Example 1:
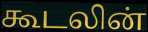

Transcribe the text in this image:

கூடலின்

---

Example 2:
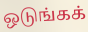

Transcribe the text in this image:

ஒடுங்கக்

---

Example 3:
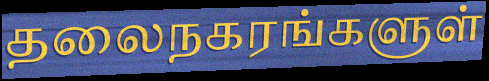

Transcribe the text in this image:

தலைநகரங்களுள்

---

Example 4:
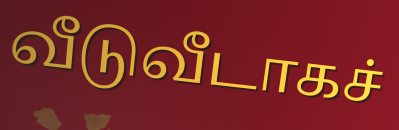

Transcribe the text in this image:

வீடுவீடாகச்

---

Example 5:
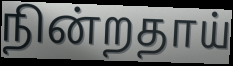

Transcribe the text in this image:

நின்றதாய்